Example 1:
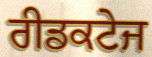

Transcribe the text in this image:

ਰੀਡਕਟੇਜ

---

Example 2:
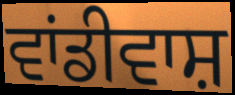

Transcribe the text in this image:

ਵਾਂਡੀਵਾਸ਼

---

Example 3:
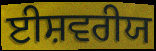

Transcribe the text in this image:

ਈਸ਼ਵਰੀਯ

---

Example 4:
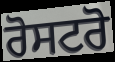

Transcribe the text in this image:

ਰੋਸਟਰੋ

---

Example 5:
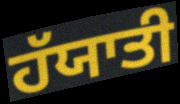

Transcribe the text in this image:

ਹੱਯਾਤੀ